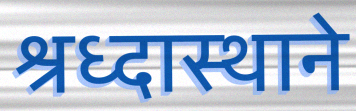
श्रध्दास्थाने